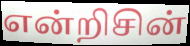
என்றிசின்